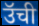
उॅची